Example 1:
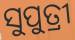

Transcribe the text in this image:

ସୁପୁତ୍ରୀ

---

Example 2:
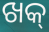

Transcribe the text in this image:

ଖକ୍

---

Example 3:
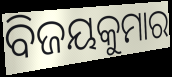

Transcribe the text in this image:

ବିଜୟକୁମାର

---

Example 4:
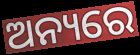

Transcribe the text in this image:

ଅନ୍ୟରେ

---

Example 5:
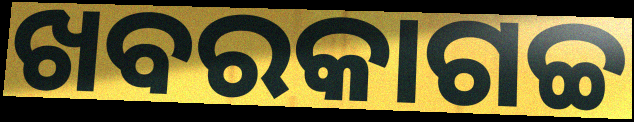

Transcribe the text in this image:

ଖବରକାଗଚ୍ଚ